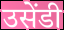
उसेंडी